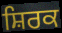
ਸ਼ਿਰਕ